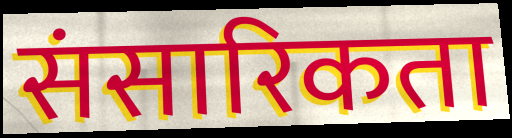
संसारिकता